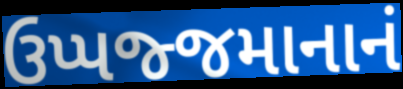
ઉપ્પજ્જમાનાનં